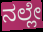
ನಲ್ಲೇ